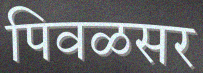
पिवळसर